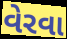
વેરવા